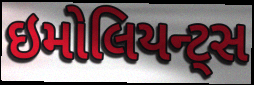
ઇમોલિયન્ટ્સ